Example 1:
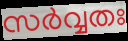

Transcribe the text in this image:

സർവ്വതഃ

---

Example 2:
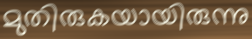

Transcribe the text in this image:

മുതിരുകയായിരുന്നു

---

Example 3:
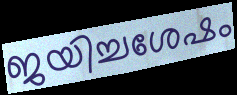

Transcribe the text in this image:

ജയിച്ചശേഷം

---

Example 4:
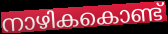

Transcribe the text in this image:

നാഴികകൊണ്ട്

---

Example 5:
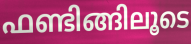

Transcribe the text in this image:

ഫണ്ടിങ്ങിലൂടെ